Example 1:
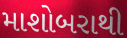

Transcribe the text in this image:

માશોબરાથી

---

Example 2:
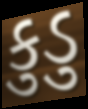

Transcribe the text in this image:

કુડુ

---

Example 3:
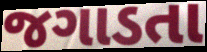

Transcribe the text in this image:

જગાડતા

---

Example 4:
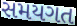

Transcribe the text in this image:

સમયગત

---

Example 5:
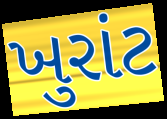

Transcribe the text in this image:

ખુરાંટ